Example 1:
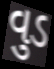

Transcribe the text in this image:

વુડ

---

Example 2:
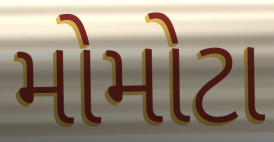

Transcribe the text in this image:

મોમોટા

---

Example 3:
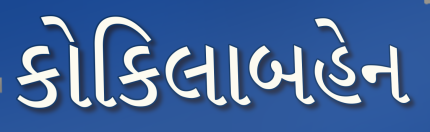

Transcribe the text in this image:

કોકિલાબહેન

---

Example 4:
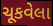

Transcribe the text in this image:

ચૂકવેલા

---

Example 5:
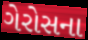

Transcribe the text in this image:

ગેરોસના